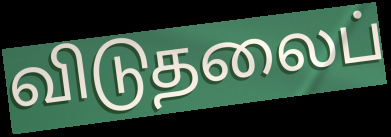
விடுதலைப்